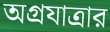
অগ্রযাত্রার